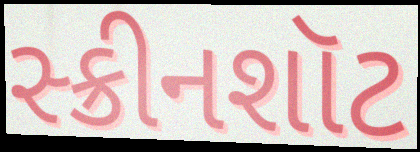
સ્ક્રીનશૉટ